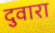
दुवारा